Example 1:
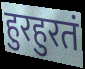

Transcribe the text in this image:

हुरहुरतं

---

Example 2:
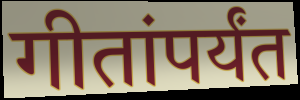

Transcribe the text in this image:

गीतांपर्यंत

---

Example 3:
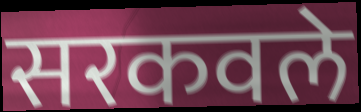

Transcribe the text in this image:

सरकवले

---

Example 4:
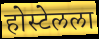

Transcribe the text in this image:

होस्टेलला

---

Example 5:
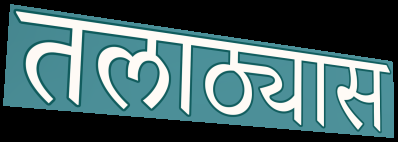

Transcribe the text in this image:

तलाठ्यास